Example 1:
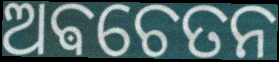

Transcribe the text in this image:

ଅଵଚେତନ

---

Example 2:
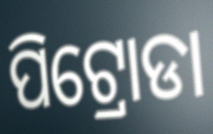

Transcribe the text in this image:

ପିଟ୍ରୋଡା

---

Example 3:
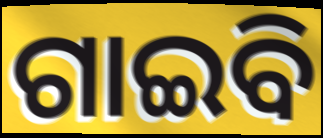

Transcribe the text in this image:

ଗାଇବି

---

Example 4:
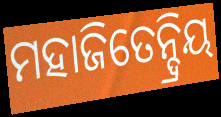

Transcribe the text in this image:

ମହାଜିତେନ୍ଦ୍ରିୟ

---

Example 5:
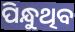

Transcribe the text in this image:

ପିନ୍ଧୁଥିବ